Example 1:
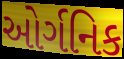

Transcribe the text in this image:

ઓર્ગનિક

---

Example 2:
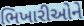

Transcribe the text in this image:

ભિખારીઓને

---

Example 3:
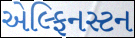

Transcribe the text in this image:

એલ્ફિનસ્ટન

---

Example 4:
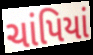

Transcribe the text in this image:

ચાંપિયાં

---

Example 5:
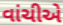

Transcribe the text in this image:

વાંચીએ